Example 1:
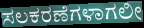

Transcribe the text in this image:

ಸಲಕರಣೆಗಳಾಗಲೀ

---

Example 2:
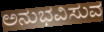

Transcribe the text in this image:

ಅನುಭವಿಸುವ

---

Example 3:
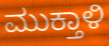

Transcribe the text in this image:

ಮುಕ್ತಾಳಿ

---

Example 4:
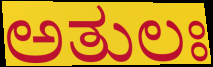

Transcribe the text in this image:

ಅತುಲಃ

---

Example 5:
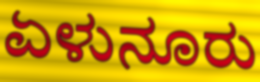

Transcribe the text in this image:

ಏಳುನೂರು